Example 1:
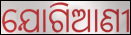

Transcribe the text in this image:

ଯୋଗିଆଣୀ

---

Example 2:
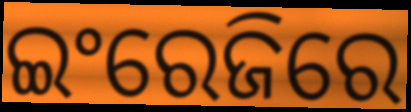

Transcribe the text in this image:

ଇଂରେଜିରେ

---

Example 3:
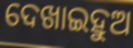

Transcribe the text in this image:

ଦେଖାଇହୁଅ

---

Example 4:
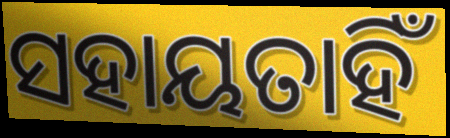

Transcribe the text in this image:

ସହାୟତାହିଁ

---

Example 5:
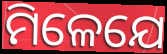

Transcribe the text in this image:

ମିଳେଯେ